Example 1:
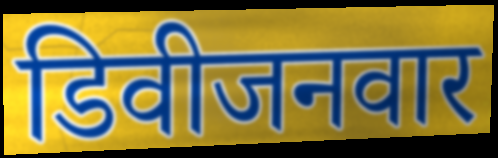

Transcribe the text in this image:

डिवीजनवार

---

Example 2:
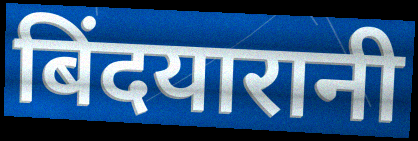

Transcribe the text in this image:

बिंदयारानी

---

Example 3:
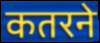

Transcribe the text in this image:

कतरने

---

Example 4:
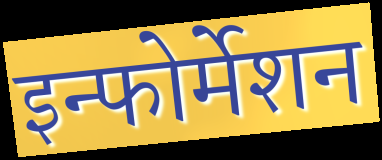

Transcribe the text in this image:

इन्फोर्मेशन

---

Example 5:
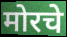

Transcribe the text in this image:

मोरचे